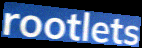
rootlets